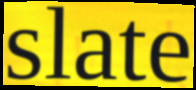
slate